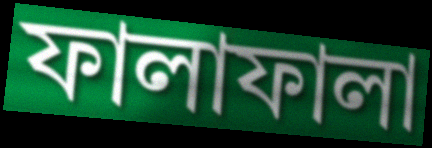
ফালাফালা